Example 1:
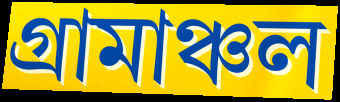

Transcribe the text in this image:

গ্ৰামাঞ্চল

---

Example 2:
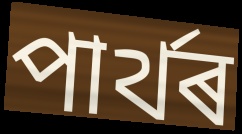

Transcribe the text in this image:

পাৰ্থৰ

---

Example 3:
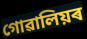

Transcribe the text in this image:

গোৱালিয়ৰ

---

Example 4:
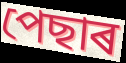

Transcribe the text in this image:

পেছাৰ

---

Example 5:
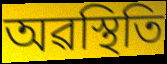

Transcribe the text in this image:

অৱস্থিতি